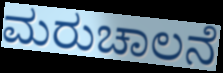
ಮರುಚಾಲನೆ